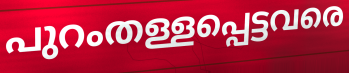
പുറംതള്ളപ്പെട്ടവരെ